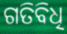
ଗତିବିଧି